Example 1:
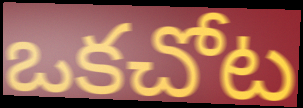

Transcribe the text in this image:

ఒకచోట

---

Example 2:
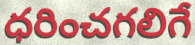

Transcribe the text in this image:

ధరించగలిగే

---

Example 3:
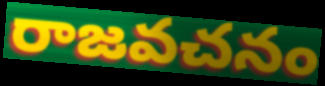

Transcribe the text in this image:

రాజవచనం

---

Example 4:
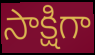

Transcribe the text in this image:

సాక్షిగా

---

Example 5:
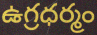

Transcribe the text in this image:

ఉగ్రధర్మం